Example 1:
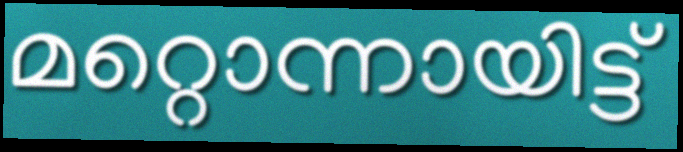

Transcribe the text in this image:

മറ്റൊന്നായിട്ട്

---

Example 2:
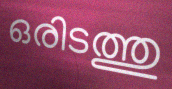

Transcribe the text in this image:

ഒരിടത്തു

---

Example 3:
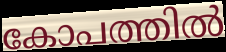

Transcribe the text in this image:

കോപത്തിൽ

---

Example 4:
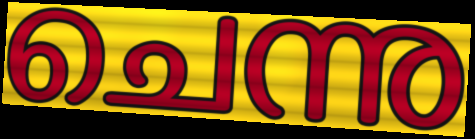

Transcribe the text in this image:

ചെന്നു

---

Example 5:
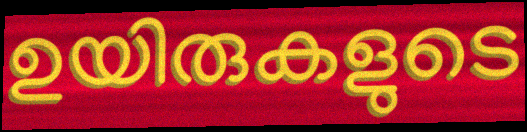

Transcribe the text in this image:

ഉയിരുകളുടെ